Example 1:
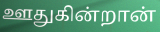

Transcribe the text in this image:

ஊதுகின்றான்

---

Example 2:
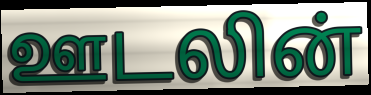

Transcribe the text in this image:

ஊடலின்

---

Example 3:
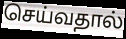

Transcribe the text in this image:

செய்வதால்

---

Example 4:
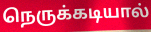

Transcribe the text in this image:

நெருக்கடியால்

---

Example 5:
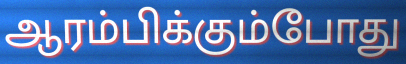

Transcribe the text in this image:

ஆரம்பிக்கும்போது